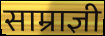
साम्राज्ञी